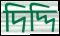
দিদ্দি